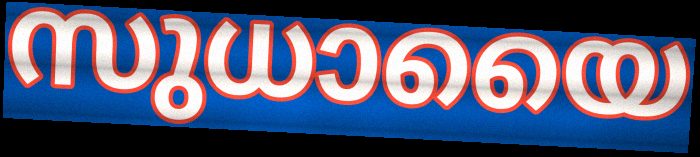
സുധായൈ